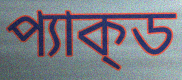
প্যাক্‌ড